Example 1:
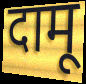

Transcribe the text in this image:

दामू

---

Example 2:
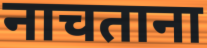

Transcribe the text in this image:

नाचताना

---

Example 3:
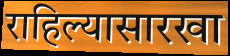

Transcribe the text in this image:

राहिल्यासारखा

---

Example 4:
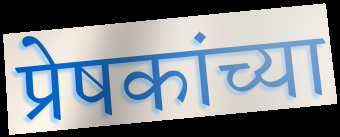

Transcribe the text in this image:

प्रेषकांच्या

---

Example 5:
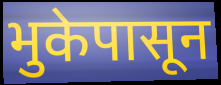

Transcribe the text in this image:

भुकेपासून